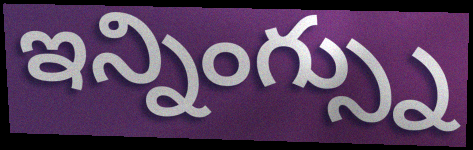
ఇన్నింగ్స్ను